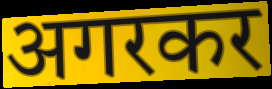
अगरकर